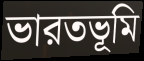
ভারতভূমি